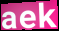
aek